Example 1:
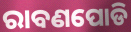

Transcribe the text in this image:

ରାବଣପୋଡି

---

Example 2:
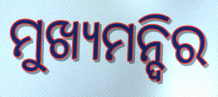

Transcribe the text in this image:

ମୁଖ୍ୟମନ୍ଦିର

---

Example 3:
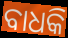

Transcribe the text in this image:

ବାଧକି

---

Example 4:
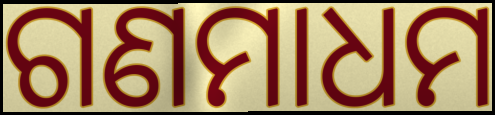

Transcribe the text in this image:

ଗଣମାଧମ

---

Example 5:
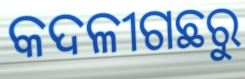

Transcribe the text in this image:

କଦଳୀଗଛରୁ